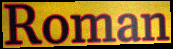
Roman